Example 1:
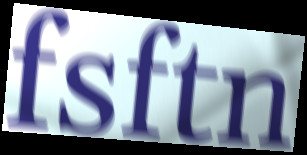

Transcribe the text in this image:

fsftn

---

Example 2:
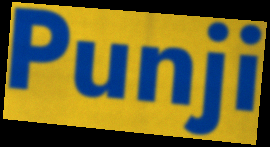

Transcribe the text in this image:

Punji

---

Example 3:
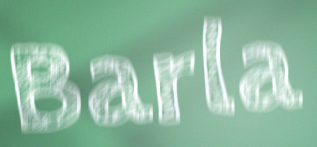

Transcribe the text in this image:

Barla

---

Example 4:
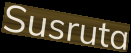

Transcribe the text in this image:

Susruta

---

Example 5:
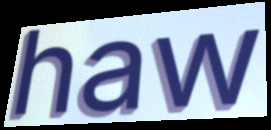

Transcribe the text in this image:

haw